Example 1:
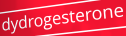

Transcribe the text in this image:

dydrogesterone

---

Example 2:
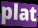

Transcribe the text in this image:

plat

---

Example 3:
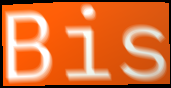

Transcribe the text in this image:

Bis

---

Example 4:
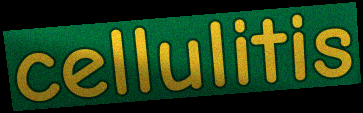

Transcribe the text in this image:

cellulitis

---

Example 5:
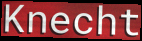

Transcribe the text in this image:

Knecht